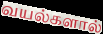
வயல்களால்